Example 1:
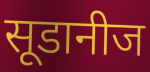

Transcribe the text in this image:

सूडानीज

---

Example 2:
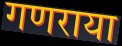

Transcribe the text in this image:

गणराया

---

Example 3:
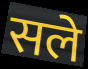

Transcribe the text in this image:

सले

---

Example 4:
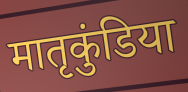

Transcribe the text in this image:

मातृकुंडिया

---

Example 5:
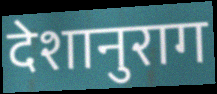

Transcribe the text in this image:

देशानुराग